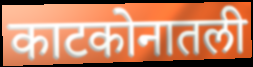
काटकोनातली